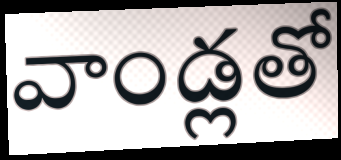
వాండ్లతో